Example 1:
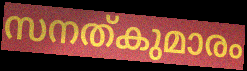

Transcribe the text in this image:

സനത്കുമാരം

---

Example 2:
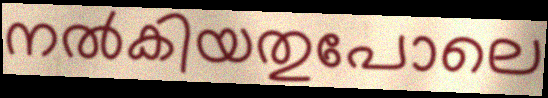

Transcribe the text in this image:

നൽകിയതുപോലെ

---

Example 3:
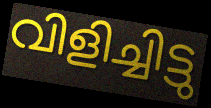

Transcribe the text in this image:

വിളിച്ചിട്ടു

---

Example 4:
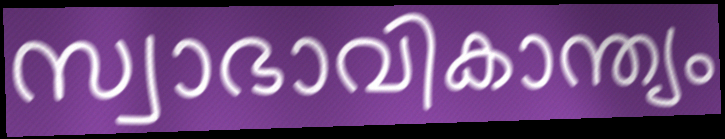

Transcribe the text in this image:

സ്വാഭാവികാന്ത്യം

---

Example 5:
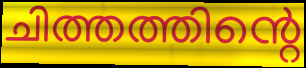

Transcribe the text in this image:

ചിത്തത്തിന്റെ